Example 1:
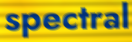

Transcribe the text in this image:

spectral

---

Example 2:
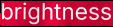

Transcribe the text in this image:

brightness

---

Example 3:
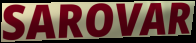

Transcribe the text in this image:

SAROVAR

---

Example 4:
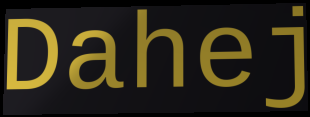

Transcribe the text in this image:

Dahej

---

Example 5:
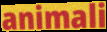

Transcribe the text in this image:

animali